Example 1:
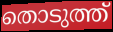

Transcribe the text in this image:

തൊടുത്ത്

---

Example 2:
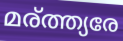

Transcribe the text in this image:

മര്ത്ത്യരേ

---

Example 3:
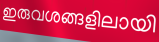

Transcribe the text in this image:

ഇരുവശങ്ങളിലായി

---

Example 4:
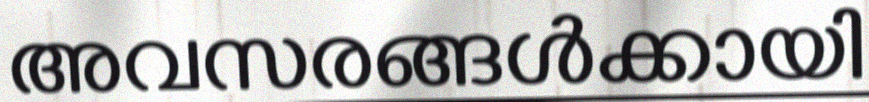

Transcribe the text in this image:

അവസരങ്ങൾക്കായി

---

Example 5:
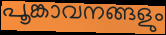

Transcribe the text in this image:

പൂങ്കാവനങ്ങളും